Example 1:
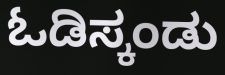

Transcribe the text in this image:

ಓಡಿಸ್ಕಂಡು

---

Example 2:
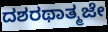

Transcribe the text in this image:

ದಶರಥಾತ್ಮಜೇ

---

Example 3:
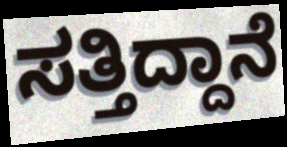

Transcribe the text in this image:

ಸತ್ತಿದ್ದಾನೆ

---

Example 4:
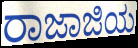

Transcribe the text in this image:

ರಾಜಾಜಿಯ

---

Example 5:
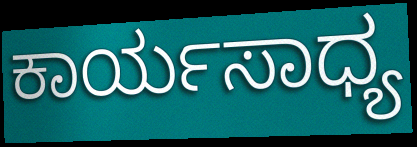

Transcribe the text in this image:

ಕಾರ್ಯಸಾಧ್ಯ